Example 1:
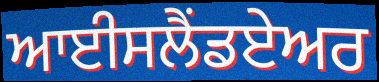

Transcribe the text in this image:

ਆਈਸਲੈਂਡਏਅਰ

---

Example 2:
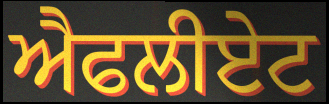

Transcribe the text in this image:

ਐਫਲੀਏਟ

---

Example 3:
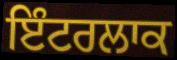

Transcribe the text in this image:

ਇੰਟਰਲਾਕ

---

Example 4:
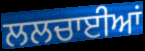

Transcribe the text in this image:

ਲਲਚਾਈਆਂ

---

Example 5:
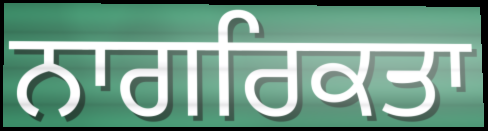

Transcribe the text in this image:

ਨਾਗਰਿਕਤਾ